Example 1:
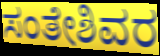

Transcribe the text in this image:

ಸಂತೇಶಿವರ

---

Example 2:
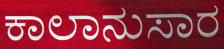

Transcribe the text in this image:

ಕಾಲಾನುಸಾರ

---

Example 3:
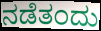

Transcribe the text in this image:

ನಡೆತಂದು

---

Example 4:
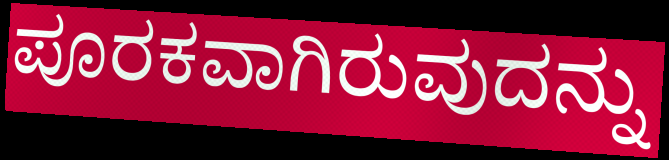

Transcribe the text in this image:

ಪೂರಕವಾಗಿರುವುದನ್ನು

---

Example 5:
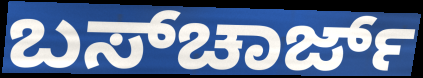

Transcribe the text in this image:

ಬಸ್‌ಚಾರ್ಜ್